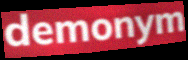
demonym